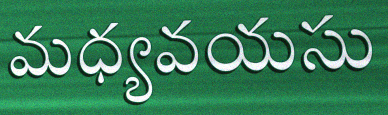
మధ్యవయసు